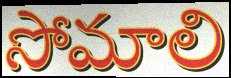
సోమాలి